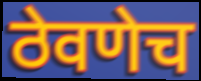
ठेवणेच